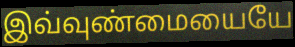
இவ்வுண்மையையே